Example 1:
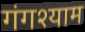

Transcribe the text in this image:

गंगश्याम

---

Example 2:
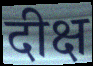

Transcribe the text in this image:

दीक्ष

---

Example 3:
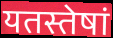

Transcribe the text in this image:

यतस्तेषां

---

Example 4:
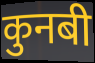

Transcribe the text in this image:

कुनबी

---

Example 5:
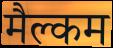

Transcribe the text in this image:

मैल्कम